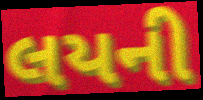
લયની